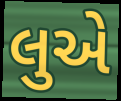
લુએ